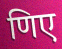
णिए